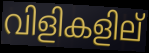
വിളികളില്